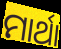
ମାର୍ଥା